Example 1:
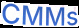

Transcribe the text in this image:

CMMs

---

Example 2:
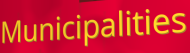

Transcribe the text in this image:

Municipalities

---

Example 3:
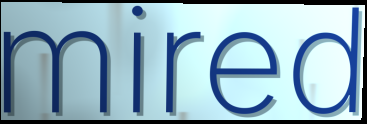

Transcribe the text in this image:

mired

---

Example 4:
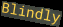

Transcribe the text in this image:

Blindly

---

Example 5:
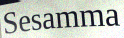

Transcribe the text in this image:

Sesamma